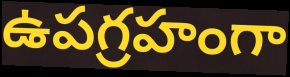
ఉపగ్రహంగా